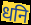
धनि